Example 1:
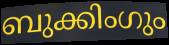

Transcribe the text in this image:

ബുക്കിംഗും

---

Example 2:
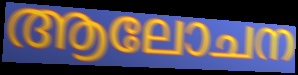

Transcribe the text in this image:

ആലോചന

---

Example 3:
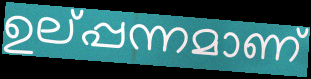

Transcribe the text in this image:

ഉല്പ്പന്നമാണ്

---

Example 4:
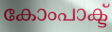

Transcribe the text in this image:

കോംപാക്ട്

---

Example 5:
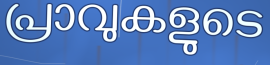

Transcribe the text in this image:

പ്രാവുകളുടെ